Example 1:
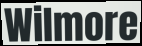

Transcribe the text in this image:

Wilmore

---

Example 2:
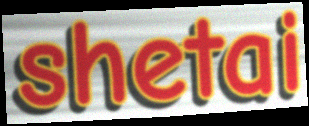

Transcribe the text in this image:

shetai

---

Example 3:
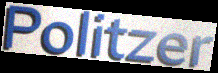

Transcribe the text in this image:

Politzer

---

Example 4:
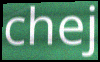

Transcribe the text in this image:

chej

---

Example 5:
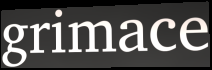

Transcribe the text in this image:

grimace